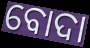
ବୋଦା